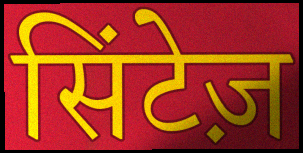
सिंटेज़